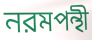
নরমপন্থী